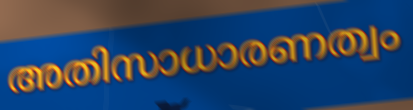
അതിസാധാരണത്വം